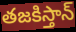
తజకిస్తాన్